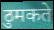
ठुमकते